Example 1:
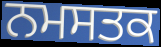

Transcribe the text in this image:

ਨਮਸਤਕ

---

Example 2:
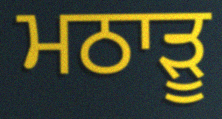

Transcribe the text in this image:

ਮਠਾੜੂ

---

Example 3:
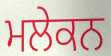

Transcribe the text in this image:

ਮਲੇਕਨ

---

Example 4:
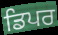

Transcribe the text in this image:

ਡਿਪਰ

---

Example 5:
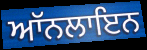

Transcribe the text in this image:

ਆੱਨਲਾਇਨ